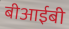
बीआईबी